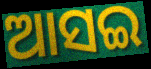
ଆସଇ